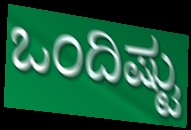
ಒಂದಿಷ್ಟು